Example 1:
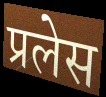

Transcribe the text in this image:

प्रलेस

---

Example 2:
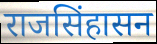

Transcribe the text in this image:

राजसिंहासन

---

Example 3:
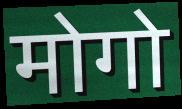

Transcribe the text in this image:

मोगो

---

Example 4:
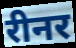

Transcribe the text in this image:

रीनर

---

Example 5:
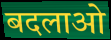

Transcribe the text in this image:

बदलाओ